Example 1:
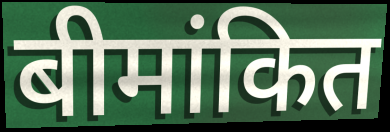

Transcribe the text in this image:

बीमांकित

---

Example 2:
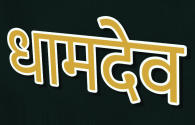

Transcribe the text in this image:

धामदेव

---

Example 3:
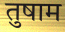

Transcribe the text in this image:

तुषाम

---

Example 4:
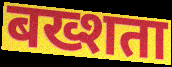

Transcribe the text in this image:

बख्शता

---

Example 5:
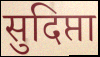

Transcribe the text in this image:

सुदिप्ता